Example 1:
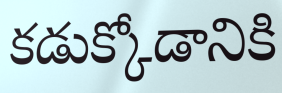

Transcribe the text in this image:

కడుక్కోడానికి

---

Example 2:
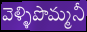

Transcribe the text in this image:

వెళ్ళిపొమ్మనీ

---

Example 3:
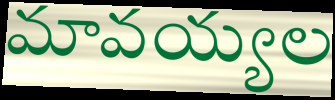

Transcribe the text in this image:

మావయ్యల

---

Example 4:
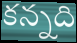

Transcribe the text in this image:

కన్నది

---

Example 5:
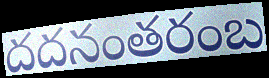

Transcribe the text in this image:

దదనంతరంబ